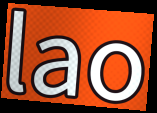
lao